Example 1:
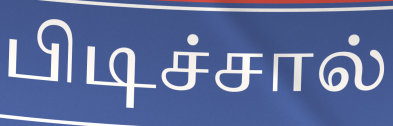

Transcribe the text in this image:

பிடிச்சால்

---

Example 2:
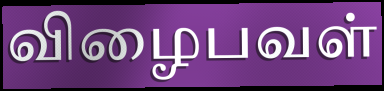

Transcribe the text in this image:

விழைபவள்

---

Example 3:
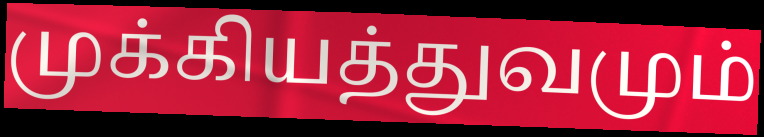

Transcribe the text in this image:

முக்கியத்துவமும்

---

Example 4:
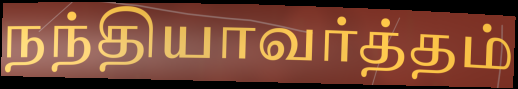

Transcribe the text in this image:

நந்தியாவர்த்தம்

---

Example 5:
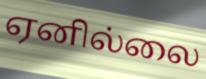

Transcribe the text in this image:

ஏனில்லை